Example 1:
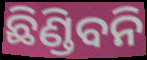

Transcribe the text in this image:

ଛିଣ୍ଡିବନି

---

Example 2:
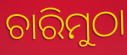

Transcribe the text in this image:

ଚାରିମୁଠା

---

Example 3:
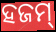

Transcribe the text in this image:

ହଜମ୍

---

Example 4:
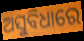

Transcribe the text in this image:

ଅସୁବିଧାରେ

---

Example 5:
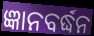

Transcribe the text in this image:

ଜ୍ଞାନବର୍ଦ୍ଧନ